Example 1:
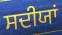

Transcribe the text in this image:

ਸਦੀਯਾਂ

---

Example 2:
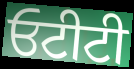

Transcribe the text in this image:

ਓਟੀਟੀ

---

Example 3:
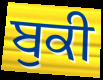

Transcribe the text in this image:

ਬੁਕੀ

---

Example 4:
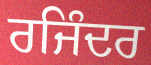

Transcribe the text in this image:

ਰਜਿੰਦਰ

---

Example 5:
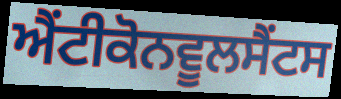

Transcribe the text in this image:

ਐਂਟੀਕੋਨਵੂਲਸੈਂਟਸ